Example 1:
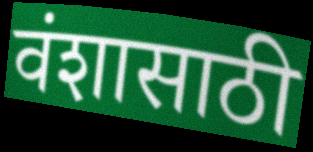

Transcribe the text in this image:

वंशासाठी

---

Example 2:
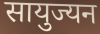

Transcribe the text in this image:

सायुज्यन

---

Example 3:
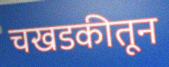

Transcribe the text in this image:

चखडकीतून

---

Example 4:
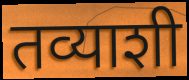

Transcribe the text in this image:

तव्याशी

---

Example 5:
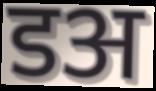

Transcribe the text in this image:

डअ